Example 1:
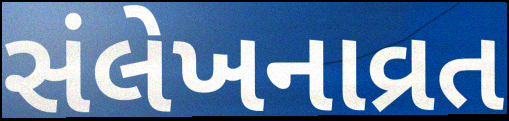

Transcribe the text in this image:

સંલેખનાવ્રત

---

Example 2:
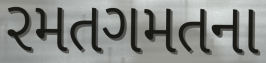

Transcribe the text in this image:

રમતગમતના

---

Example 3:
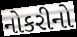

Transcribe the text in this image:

નોકરીનો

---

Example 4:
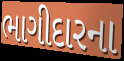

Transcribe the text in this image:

ભાગીદારના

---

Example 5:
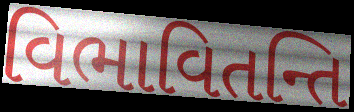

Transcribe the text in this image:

વિભાવિતન્તિ